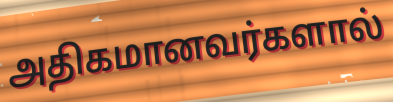
அதிகமானவர்களால்